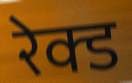
रेक्ड